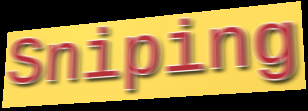
Sniping